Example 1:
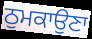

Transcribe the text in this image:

ਠੁਮਕਾਉਣਾ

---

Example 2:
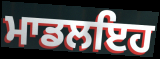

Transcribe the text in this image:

ਮਾਡਲਇਹ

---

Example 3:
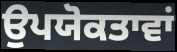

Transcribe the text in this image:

ਉਪਯੋਕਤਾਵਾਂ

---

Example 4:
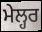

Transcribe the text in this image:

ਮੇਲ੍ਹਰ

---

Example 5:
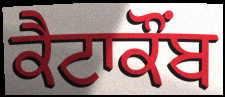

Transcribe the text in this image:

ਕੈਟਾਕੌਂਬ